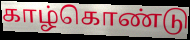
காழ்கொண்டு